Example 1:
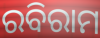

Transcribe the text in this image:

ରବିରାମ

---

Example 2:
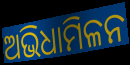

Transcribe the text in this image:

ଅଭିଧାମିଳନ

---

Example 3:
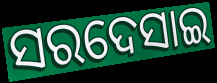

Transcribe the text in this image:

ସରଦେସାଇ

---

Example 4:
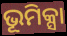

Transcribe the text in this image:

ଭୂମିକ୍ସା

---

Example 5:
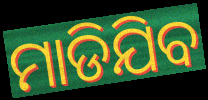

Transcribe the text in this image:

ମାଡିଯିବ